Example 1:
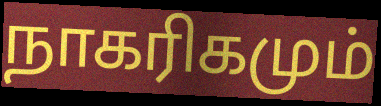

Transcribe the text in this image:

நாகரிகமும்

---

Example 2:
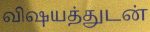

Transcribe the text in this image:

விஷயத்துடன்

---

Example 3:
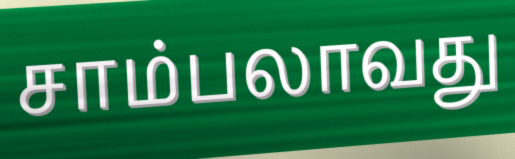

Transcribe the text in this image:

சாம்பலாவது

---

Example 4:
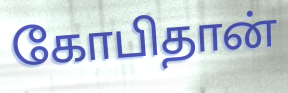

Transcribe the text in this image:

கோபிதான்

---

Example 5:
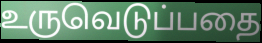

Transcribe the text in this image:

உருவெடுப்பதை